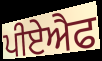
ਪੀਏਐਫ